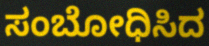
ಸಂಬೋಧಿಸಿದ